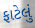
ફાટેલું